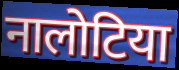
नालोटिया